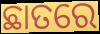
ଛାତରେ